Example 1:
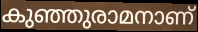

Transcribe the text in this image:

കുഞ്ഞുരാമനാണ്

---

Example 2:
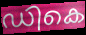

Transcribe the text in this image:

ഡികെ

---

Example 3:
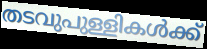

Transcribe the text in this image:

തടവുപുള്ളികൾക്ക്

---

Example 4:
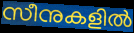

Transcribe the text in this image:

സീനുകളിൽ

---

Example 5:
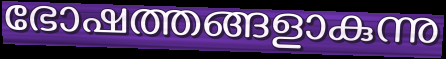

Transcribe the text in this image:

ഭോഷത്തങ്ങളാകുന്നു